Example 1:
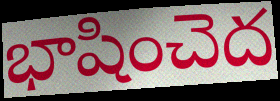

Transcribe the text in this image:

భాషించెద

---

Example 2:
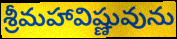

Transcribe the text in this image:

శ్రీమహావిష్ణువును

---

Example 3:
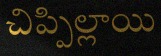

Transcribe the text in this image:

చిప్పిల్లాయి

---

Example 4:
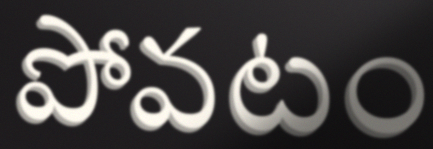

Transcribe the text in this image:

పోవటం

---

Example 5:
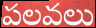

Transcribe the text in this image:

పలవలు